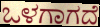
ಒಳಗಾಗದೆ